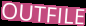
OUTFILE